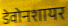
डेवोनशायर